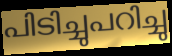
പിടിച്ചുപറിച്ചു